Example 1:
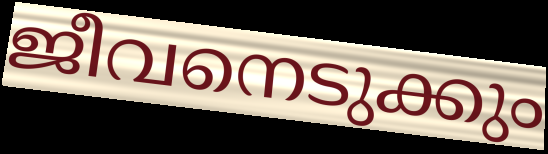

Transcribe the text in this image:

ജീവനെടുക്കും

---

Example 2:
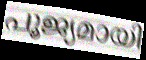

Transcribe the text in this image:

പൂജ്യമായി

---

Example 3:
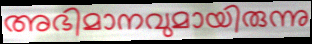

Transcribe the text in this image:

അഭിമാനവുമായിരുന്നു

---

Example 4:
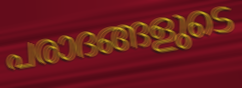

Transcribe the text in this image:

പരാദങ്ങളുടെ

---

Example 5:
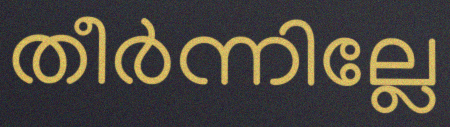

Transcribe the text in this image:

തീർന്നില്ലേ